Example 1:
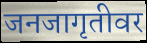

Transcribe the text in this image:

जनजागृतीवर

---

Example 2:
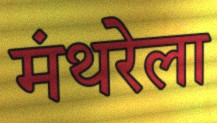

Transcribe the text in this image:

मंथरेला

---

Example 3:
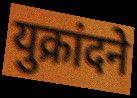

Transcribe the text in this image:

युक्रांदने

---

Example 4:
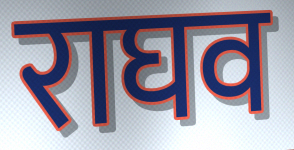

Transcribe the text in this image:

राघव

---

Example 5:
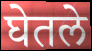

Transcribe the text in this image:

घेतले